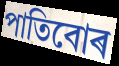
পাতিবোৰ